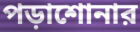
পড়াশোনার